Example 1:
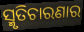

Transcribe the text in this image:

ସ୍ମୃତିଚାରଣାର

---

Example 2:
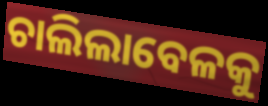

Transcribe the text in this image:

ଚାଲିଲାବେଳକୁ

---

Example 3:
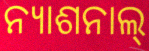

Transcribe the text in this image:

ନ୍ୟାଶନାଲ୍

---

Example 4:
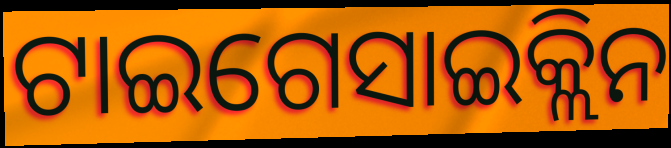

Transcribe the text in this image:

ଟାଇଗେସାଇକ୍ଲିନ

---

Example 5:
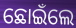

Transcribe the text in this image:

ଛୋଇଁଲେ